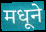
मधूने